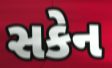
સકેન